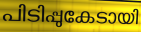
പിടിപ്പുകേടായി